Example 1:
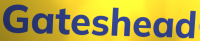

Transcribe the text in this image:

Gateshead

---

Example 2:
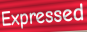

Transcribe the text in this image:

Expressed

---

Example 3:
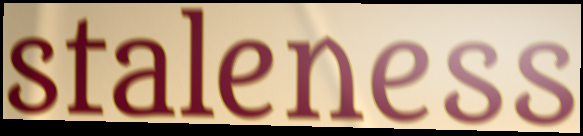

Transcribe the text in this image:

staleness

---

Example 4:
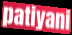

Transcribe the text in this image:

patiyani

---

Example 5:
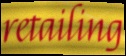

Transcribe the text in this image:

retailing